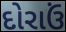
દોરાઉં